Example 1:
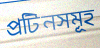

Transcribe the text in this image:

প্ৰটিনসমূহ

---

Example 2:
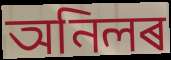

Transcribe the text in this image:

অনিলৰ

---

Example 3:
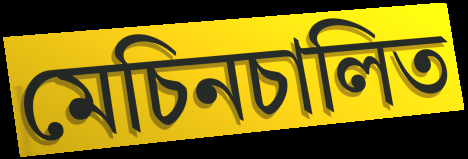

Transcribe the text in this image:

মেচিনচালিত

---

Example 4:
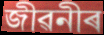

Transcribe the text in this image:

জীৱনীৰ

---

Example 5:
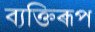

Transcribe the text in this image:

ব্যক্তিৰূপ